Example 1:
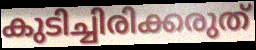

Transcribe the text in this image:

കുടിച്ചിരിക്കരുത്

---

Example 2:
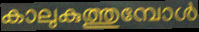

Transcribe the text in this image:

കാലുകുത്തുമ്പോൾ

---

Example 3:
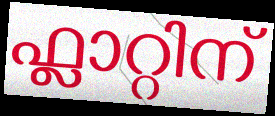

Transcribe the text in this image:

ഫ്ലാറ്റിന്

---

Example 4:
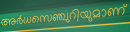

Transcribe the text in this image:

അർധസെഞ്ചുറിയുമാണ്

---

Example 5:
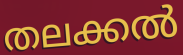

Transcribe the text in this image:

തലക്കൽ